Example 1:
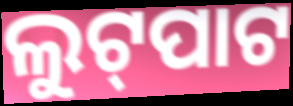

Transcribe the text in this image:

ଲୁଟ୍‍ପାଟ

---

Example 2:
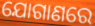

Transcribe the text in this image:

ଯୋଗାଣରେ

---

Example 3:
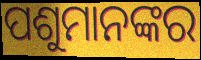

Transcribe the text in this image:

ପଶୁମାନଙ୍କର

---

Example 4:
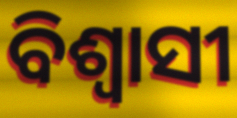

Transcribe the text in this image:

ବିଶ୍ୱାସୀ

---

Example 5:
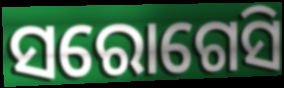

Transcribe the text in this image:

ସରୋଗେସି